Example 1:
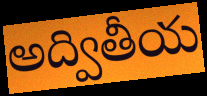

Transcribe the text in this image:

అద్వితీయ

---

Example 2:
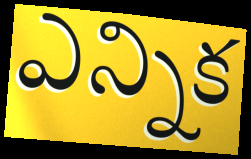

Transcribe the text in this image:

ఎన్నిక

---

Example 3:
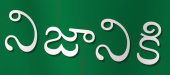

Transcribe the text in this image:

నిజానికి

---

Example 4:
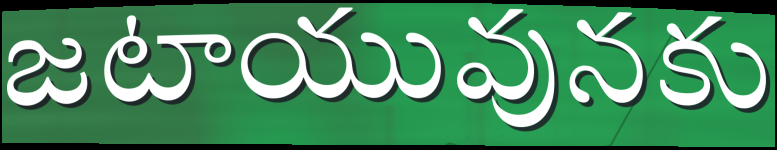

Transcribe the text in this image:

జటాయువునకు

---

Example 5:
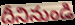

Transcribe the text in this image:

దీనినుండి